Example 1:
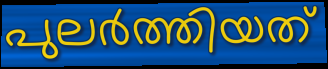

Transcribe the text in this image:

പുലർത്തിയത്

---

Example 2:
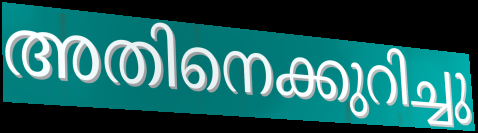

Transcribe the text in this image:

അതിനെക്കുറിച്ചു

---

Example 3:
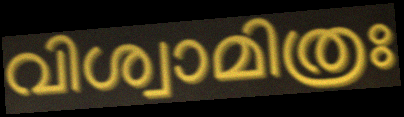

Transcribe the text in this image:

വിശ്വാമിത്രഃ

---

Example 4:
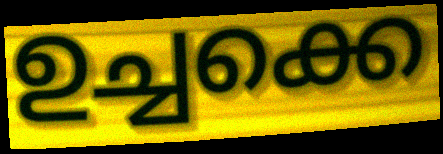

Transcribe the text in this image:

ഉച്ചക്കെ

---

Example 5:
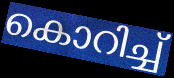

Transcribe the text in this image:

കൊറിച്ച്